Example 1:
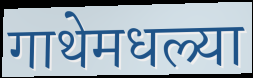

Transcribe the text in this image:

गाथेमधल्या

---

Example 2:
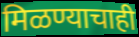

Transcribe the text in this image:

मिळण्याचाही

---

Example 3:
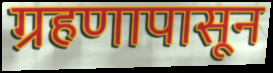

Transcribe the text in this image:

ग्रहणापासून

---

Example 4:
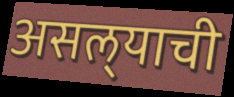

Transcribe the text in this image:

असल्याची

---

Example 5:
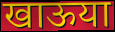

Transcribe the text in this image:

खाऊया